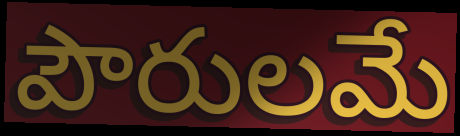
పౌరులమే